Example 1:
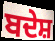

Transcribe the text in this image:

ਬਦੇਸ਼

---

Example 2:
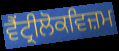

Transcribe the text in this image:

ਵੈਂਟ੍ਰੀਲੋਕਵਿਜ਼ਮ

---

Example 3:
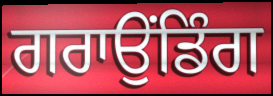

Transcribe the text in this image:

ਗਰਾਉਂਡਿੰਗ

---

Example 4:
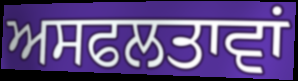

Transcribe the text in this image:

ਅਸਫਲਤਾਵਾਂ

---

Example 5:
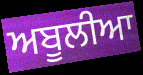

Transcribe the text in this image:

ਅਬੂਲੀਆ